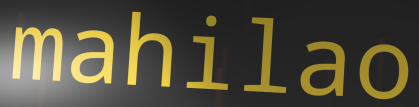
mahilao